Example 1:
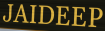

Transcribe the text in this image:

JAIDEEP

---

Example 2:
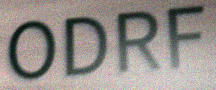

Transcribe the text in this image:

ODRF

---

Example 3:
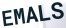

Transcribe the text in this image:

EMALS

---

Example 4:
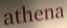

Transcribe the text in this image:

athena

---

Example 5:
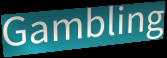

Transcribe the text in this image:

Gambling